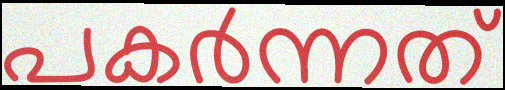
പകർന്നത്